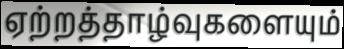
ஏற்றத்தாழ்வுகளையும்